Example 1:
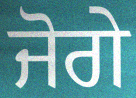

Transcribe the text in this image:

ਜੋਗੇ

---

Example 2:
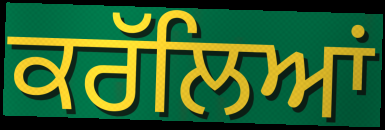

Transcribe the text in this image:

ਕਰੱਲਿਆਂ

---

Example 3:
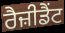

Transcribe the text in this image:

ਰੈਜ਼ੀਡੈਂਟ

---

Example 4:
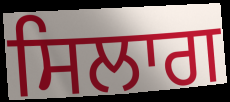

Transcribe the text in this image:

ਸਿਲਾਗ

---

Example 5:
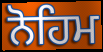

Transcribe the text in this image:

ਨੋਹਿਮ